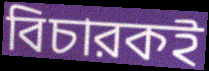
বিচারকই